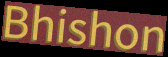
Bhishon